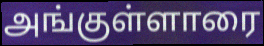
அங்குள்ளாரை